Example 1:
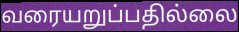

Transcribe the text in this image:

வரையறுப்பதில்லை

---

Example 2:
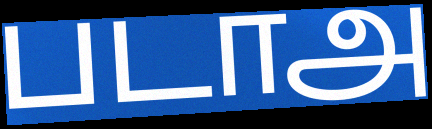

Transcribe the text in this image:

படாஅ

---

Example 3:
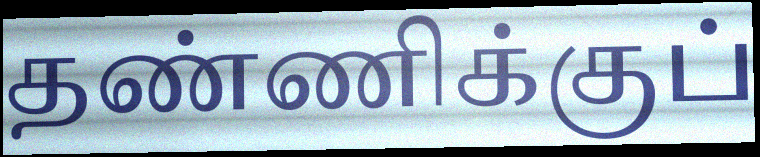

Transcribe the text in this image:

தண்ணிக்குப்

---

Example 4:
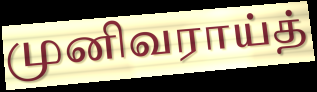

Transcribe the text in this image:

முனிவராய்த்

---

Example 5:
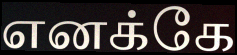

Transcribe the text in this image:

எனக்கே